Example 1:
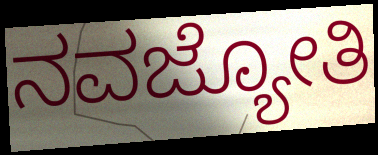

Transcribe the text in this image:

ನವಜ್ಯೋತಿ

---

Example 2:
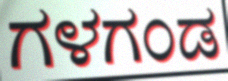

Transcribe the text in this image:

ಗಳಗಂಡ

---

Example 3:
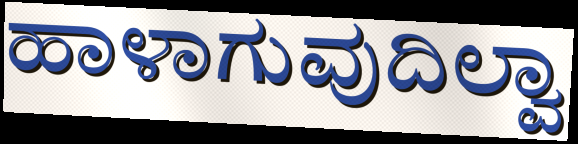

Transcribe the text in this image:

ಹಾಳಾಗುವುದಿಲ್ವಾ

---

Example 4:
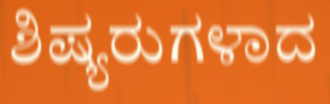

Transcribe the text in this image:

ಶಿಷ್ಯರುಗಳಾದ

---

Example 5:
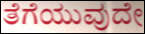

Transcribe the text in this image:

ತೆಗೆಯುವುದೇ